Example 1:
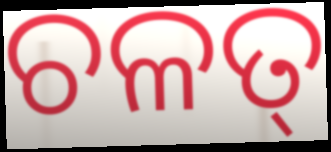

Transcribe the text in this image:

ଚଳତ୍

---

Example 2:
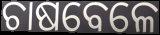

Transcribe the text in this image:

ଚାଷବେଳେ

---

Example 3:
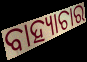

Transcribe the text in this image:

ବାହ୍ୟାଚାର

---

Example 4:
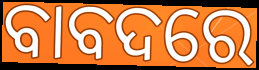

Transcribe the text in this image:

ବାବଦରେ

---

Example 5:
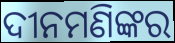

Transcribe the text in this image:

ଦୀନମଣିଙ୍କର